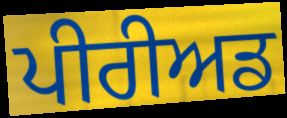
ਪੀਰੀਅਡ